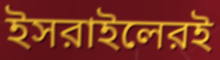
ইসরাইলেরই